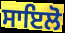
ਸਾਇਲੋ